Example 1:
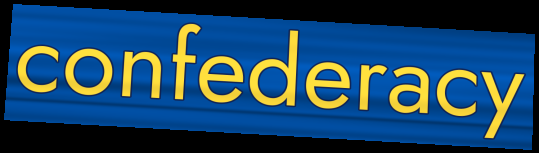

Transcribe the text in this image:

confederacy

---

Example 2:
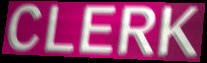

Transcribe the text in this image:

CLERK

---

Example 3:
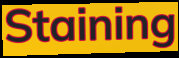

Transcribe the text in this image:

Staining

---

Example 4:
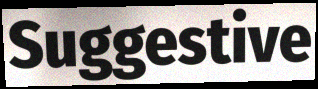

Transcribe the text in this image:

Suggestive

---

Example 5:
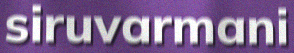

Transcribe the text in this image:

siruvarmani